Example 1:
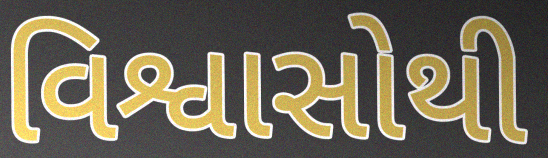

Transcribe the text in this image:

વિશ્વાસોથી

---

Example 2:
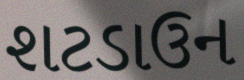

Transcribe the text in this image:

શટડાઉન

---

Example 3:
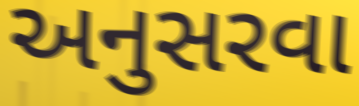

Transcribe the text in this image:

અનુસરવા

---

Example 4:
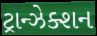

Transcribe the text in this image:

ટ્રાન્ઝેક્શન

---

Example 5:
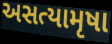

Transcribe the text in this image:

અસત્યામૃષા